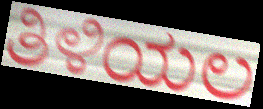
ತಿಳಿಯಲ